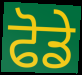
ਫੋਡੇ